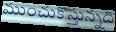
ముంచుకొస్తున్నది